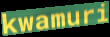
kwamuri